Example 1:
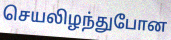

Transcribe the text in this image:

செயலிழந்துபோன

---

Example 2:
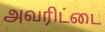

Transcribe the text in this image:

அவரிட்டை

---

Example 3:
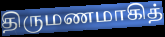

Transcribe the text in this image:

திருமணமாகித்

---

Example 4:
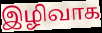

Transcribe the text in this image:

இழிவாக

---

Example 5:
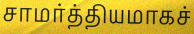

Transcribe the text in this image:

சாமர்த்தியமாகச்